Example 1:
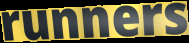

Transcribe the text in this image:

runners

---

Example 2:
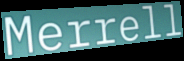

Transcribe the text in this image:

Merrell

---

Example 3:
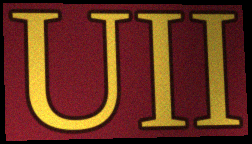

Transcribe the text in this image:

UII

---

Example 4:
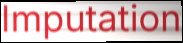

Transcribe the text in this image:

Imputation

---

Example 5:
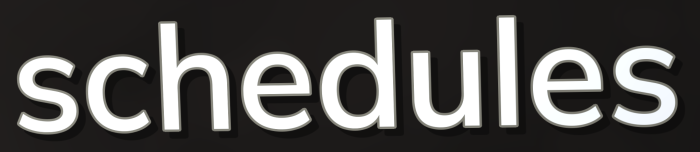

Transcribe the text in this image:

schedules